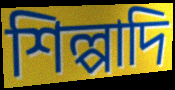
শিল্পাদি